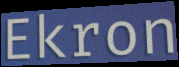
Ekron